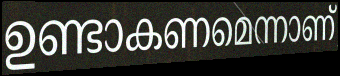
ഉണ്ടാകണമെന്നാണ്